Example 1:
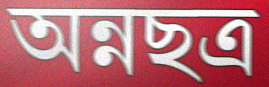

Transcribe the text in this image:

অন্নছত্র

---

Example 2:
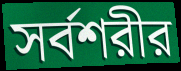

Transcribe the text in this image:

সর্বশরীর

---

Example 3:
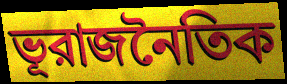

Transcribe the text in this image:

ভূরাজনৈতিক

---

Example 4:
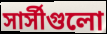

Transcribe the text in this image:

সার্সীগুলো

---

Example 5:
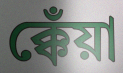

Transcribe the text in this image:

ক্কেঁয়া